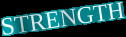
STRENGTH